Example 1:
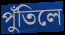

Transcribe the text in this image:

পুঁতিলে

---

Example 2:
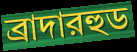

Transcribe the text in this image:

ব্রাদারহুড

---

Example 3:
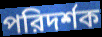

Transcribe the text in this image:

পরিদর্শক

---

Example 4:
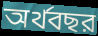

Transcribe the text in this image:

অর্থবছর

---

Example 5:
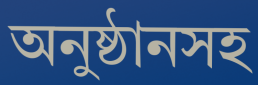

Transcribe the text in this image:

অনুষ্ঠানসহ